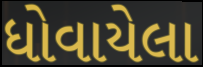
ધોવાયેલા